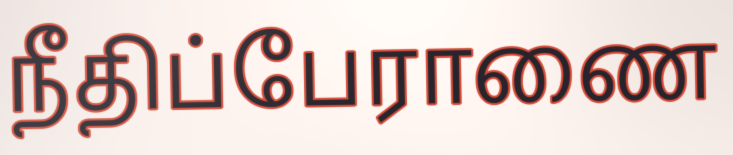
நீதிப்பேராணை